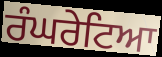
ਰੰਘਰੇਟਿਆ